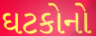
ઘટકોનો